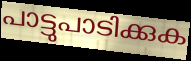
പാട്ടുപാടിക്കുക